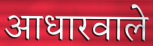
आधारवाले